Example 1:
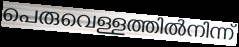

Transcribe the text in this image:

പെരുവെള്ളത്തിൽനിന്ന്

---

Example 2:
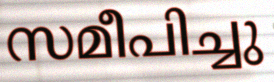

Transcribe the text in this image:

സമീപിച്ചു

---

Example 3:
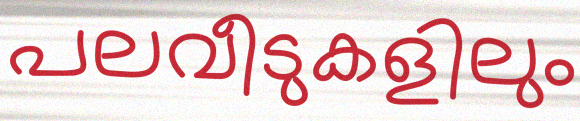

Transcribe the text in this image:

പലവീടുകളിലും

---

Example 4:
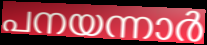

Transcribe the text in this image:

പനയന്നാർ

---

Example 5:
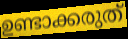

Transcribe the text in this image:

ഉണ്ടാക്കരുത്